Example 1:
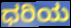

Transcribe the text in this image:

ಧರಿಯ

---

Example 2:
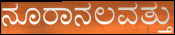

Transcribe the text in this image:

ನೂರಾನಲವತ್ತು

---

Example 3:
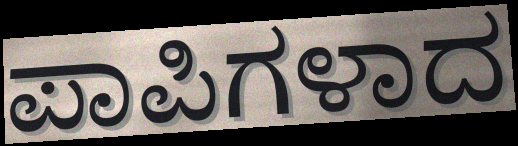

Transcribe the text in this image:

ಪಾಪಿಗಳಾದ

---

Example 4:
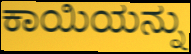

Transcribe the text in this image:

ಕಾಯಿಯನ್ನು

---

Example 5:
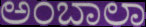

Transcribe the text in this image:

ಅಂಬಾಲಾ